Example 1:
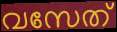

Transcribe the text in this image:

വസേത്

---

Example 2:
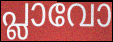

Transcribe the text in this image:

പ്ലാവോ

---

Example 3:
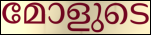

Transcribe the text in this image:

മോളുടെ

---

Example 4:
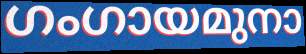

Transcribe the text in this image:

ഗംഗായമുനാ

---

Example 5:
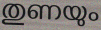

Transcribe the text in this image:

തുണയും